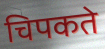
चिपकते